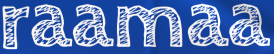
raamaa